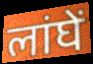
लांघें